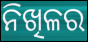
ନିଖିଳର